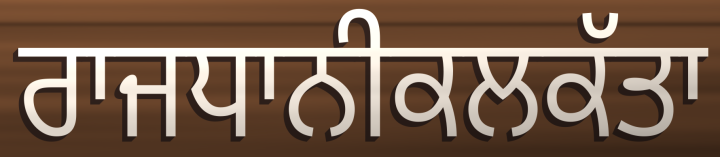
ਰਾਜਧਾਨੀਕਲਕੱਤਾ